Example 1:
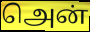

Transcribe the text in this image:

அென்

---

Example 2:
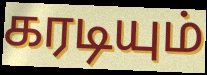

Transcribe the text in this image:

கரடியும்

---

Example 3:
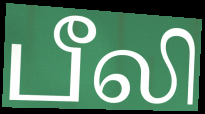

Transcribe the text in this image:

பீலி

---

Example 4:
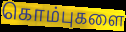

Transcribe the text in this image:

கொம்புகளை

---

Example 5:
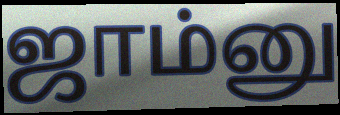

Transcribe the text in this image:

ஜாம்னு